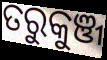
ତରୁକୁଞ୍ଜ